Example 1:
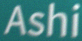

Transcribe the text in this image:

Ashi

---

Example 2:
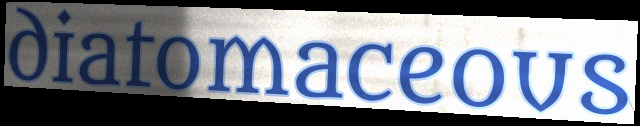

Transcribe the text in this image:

diatomaceous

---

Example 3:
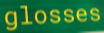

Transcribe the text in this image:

glosses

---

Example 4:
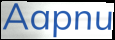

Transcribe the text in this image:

Aapnu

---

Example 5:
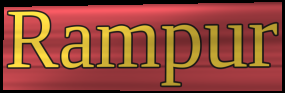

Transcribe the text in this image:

Rampur